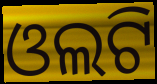
ଓଲଟି